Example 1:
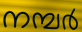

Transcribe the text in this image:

നമ്പർ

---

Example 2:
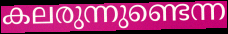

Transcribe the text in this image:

കലരുന്നുണ്ടെന്ന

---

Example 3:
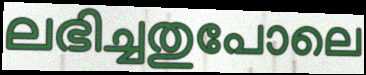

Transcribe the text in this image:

ലഭിച്ചതുപോലെ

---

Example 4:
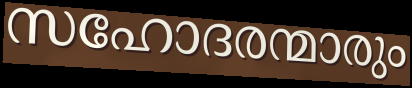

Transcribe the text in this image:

സഹോദരന്മാരും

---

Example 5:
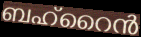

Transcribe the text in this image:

ബഹ്റൈൻ